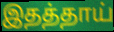
இதத்தாய்